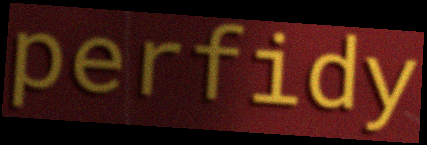
perfidy